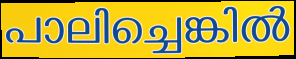
പാലിച്ചെങ്കിൽ